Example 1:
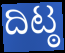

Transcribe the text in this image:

ದಿಟ್ಠ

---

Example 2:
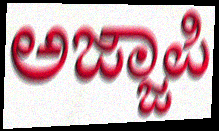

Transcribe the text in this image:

ಅಜ್ಜಾಪಿ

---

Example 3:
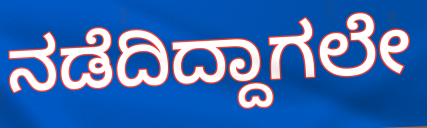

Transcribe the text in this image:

ನಡೆದಿದ್ದಾಗಲೇ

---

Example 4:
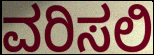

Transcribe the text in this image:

ವರಿಸಲಿ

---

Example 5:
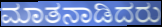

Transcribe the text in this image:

ಮಾತನಾಡಿದರು